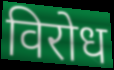
विरोध